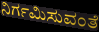
ನಿರ್ಗಮಿಸುವಂತೆ